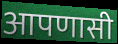
आपणासी